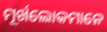
ମୂର୍ଖଲୋକମାନେ